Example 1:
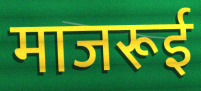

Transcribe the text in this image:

माजरूई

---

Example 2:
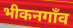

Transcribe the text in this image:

भीकनगाँव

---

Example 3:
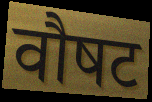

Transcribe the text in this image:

वौषट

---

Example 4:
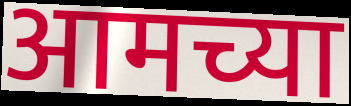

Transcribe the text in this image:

आमच्या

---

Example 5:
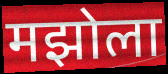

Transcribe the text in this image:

मझोला